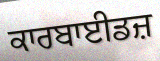
ਕਾਰਬਾਈਡਜ਼